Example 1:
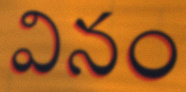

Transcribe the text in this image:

వినం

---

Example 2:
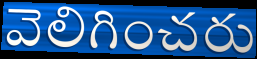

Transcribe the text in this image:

వెలిగించరు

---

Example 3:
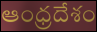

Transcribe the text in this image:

ఆంధ్రదేశం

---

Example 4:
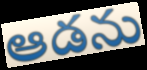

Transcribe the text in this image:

ఆడను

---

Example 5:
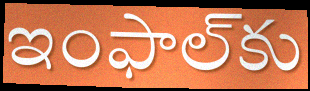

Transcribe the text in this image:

ఇంఫాల్‌కు